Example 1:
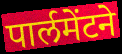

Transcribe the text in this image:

पार्लमेंटने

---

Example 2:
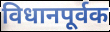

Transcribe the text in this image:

विधानपूर्वक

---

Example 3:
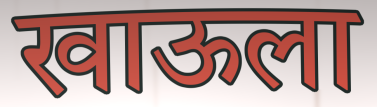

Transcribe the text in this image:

खाऊला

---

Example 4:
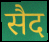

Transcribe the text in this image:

सैद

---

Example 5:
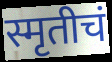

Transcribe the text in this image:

स्मृतीचं